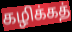
கழிக்கத்